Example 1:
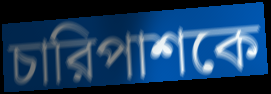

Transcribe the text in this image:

চারিপাশকে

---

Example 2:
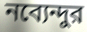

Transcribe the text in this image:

নব্যেন্দুর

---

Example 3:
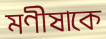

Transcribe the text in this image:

মণীষাকে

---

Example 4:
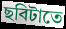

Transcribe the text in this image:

ছবিটাতে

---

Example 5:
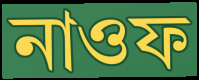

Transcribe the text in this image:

নাওফ